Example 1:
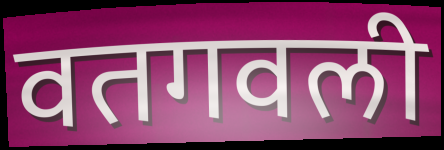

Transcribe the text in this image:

वतगवली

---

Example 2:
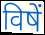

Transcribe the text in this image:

विषें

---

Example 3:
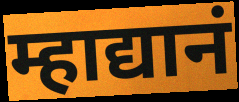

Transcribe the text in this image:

म्हाद्यानं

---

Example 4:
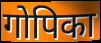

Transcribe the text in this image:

गोपिका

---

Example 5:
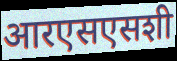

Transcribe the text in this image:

आरएसएसशी